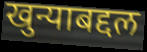
खुन्याबद्दल